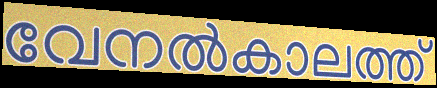
വേനൽകാലത്ത്